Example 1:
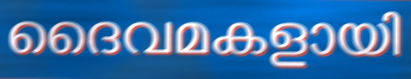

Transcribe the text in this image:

ദൈവമകളായി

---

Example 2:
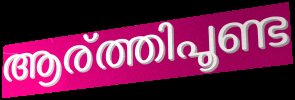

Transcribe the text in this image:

ആര്ത്തിപൂണ്ട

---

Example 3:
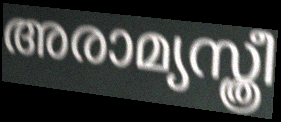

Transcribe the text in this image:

അരാമ്യസ്ത്രീ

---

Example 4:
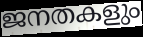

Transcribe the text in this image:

ജനതകളും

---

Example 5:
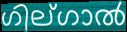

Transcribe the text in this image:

ഗില്ഗാൽ